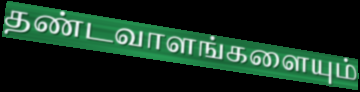
தண்டவாளங்களையும்